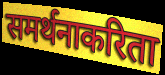
समर्थनाकरिता